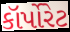
કૉર્પોરેટ